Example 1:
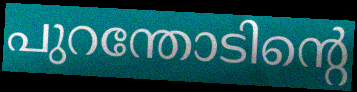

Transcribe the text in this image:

പുറന്തോടിന്റെ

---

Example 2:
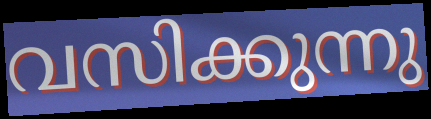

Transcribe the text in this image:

വസിക്കുന്നു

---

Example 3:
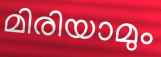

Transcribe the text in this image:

മിരിയാമും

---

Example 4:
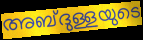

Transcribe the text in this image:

അബ്ദുള്ളയുടെ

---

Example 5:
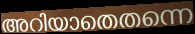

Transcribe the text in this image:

അറിയാതെതന്നെ